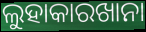
ଲୁହାକାରଖାନା